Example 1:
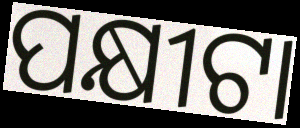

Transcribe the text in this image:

ପକ୍ଷୀଟା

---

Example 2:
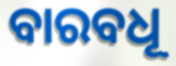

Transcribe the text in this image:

ବାରବଧୂ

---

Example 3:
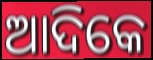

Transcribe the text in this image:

ଆଦିକେ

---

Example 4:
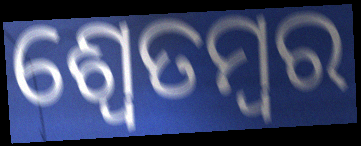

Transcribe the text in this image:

ଶ୍ଵେତମ୍ବର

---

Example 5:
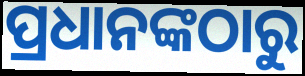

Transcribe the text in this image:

ପ୍ରଧାନଙ୍କଠାରୁ